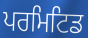
ਪਰਮਿਟਿਡ